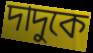
দাদুকে